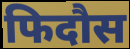
फिदौस